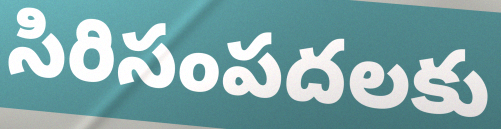
సిరిసంపదలకు